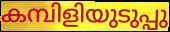
കമ്പിളിയുടുപ്പു